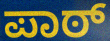
ಪಾಠ್